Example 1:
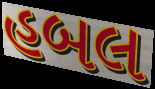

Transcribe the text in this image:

હબલ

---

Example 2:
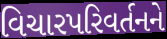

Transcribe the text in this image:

વિચારપરિવર્તનને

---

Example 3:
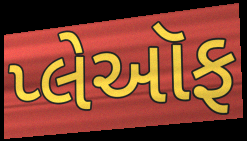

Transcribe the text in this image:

પ્લેઑફ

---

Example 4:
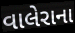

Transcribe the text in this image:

વાલેરાના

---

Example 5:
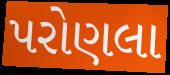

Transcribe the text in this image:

પરોણલા